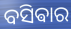
ବସିଵାର